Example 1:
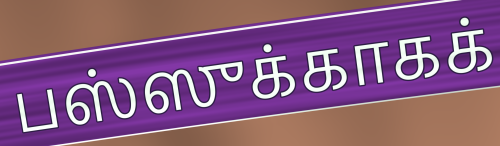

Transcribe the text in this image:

பஸ்ஸுக்காகக்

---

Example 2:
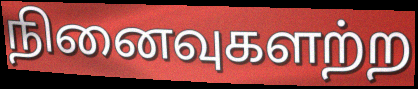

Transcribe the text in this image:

நினைவுகளற்ற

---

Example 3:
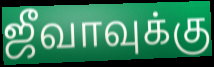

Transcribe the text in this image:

ஜீவாவுக்கு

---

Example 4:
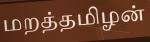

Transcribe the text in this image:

மறத்தமிழன்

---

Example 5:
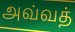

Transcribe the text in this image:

அவ்வத்